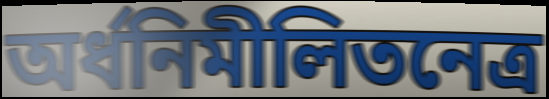
অর্ধনিমীলিতনেত্র